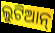
ଲୁଟିଆନ୍